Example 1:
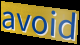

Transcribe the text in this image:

avoid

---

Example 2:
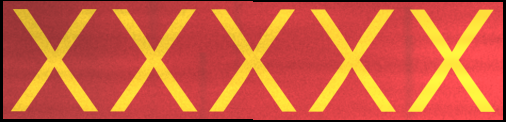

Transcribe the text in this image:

xxxxx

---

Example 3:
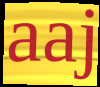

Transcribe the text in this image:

aaj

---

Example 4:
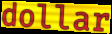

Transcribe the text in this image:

dollar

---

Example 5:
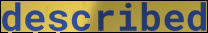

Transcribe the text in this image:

described